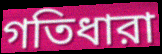
গতিধারা